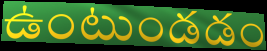
ఉంటుండడం